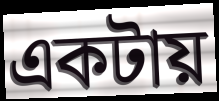
একটায়